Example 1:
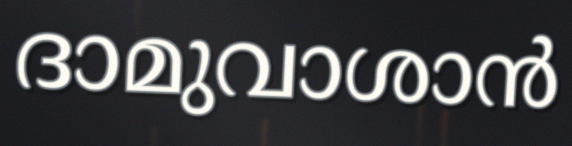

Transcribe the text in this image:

ദാമുവാശാൻ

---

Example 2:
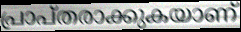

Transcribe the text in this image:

പ്രാപ്തരാക്കുകയാണ്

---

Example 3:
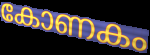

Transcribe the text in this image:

കോണകം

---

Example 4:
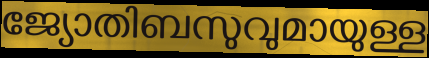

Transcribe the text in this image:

ജ്യോതിബസുവുമായുള്ള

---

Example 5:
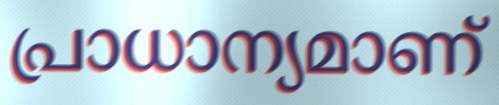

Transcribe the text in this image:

പ്രാധാന്യമാണ്